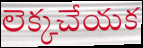
లెక్కచేయక